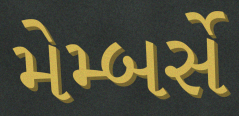
મેમ્બર્સે